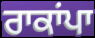
ਰਾਕਾਂਪਾ